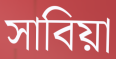
সাবিয়া